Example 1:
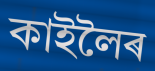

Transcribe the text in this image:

কাইলৈৰ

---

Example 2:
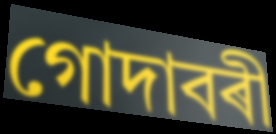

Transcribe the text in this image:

গোদাবৰী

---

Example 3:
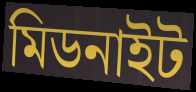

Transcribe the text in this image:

মিডনাইট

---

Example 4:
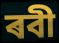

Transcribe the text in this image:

ৰবী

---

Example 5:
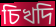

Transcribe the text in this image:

চিখদি